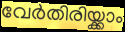
വേർതിരിയ്ക്കാം